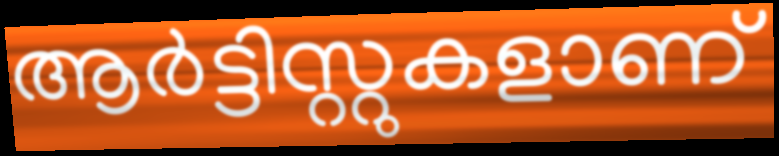
ആർട്ടിസ്റ്റുകളാണ്